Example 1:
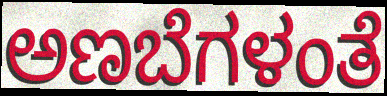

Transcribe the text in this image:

ಅಣಬೆಗಳಂತೆ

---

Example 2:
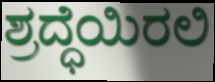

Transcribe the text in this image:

ಶ್ರದ್ಧೆಯಿರಲಿ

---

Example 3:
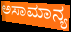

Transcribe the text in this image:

ಅಸಾಮಾನ್ಯ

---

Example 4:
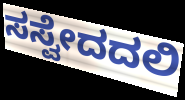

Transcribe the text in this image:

ಸಸ್ವೇದದಲಿ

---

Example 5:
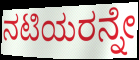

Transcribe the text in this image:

ನಟಿಯರನ್ನೇ